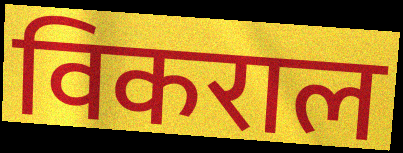
विकराल